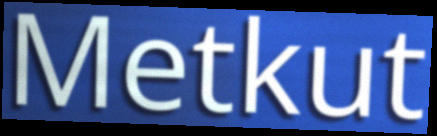
Metkut